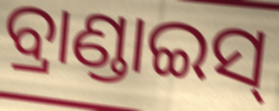
ବ୍ରାଣ୍ଡାଇସ୍